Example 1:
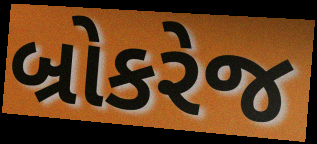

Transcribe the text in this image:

બ્રોકરેજ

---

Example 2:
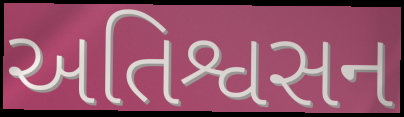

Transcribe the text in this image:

અતિશ્વસન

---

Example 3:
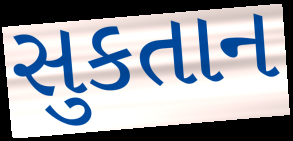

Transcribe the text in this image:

સુકતાન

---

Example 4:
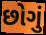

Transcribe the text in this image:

છોગું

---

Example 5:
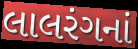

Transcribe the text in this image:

લાલરંગનાં